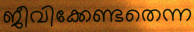
ജീവിക്കേണ്ടതെന്ന